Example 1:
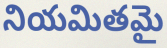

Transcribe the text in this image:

నియమితమై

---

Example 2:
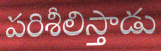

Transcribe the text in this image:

పరిశీలిస్తాడు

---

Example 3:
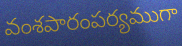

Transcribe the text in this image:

వంశపారంపర్యముగా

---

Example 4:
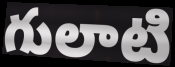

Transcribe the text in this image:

గులాటి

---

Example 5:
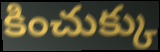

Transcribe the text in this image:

కించుక్కు